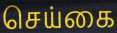
செய்கை